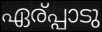
ഏര്പ്പാടു